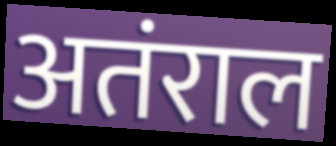
अतंराल